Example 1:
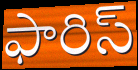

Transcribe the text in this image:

ఫారిస్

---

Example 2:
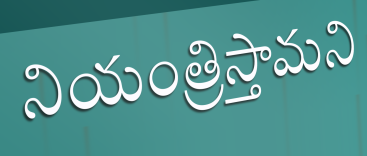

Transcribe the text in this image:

నియంత్రిస్తామని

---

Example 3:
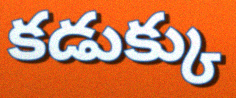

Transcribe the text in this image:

కడుక్కు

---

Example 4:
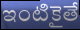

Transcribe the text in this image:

ఇంటికైతే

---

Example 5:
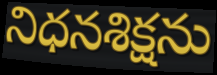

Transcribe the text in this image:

నిధనశిక్షను